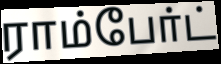
ராம்பேர்ட்